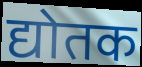
द्योतक